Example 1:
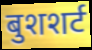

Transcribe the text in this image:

बुशशर्ट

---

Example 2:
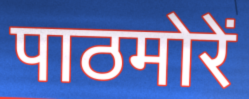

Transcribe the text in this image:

पाठमोरें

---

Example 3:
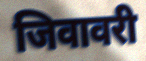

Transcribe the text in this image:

जिवावरी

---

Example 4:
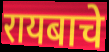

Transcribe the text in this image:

रायबाचे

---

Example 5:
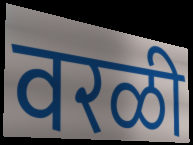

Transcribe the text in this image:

वरळी